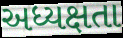
અધ્યક્ષતા